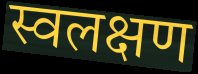
स्वलक्षण